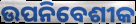
ଉପନିବେଶୀକ